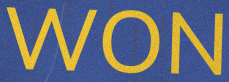
WON